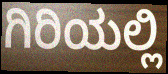
ಗಿರಿಯಲ್ಲಿ